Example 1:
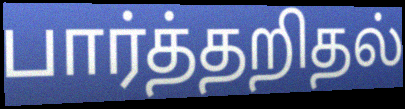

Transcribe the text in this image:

பார்த்தறிதல்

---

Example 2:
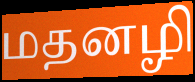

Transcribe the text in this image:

மதனழி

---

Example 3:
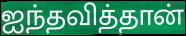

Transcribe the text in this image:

ஐந்தவித்தான்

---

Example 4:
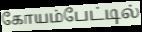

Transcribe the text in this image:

கோயம்பேட்டில்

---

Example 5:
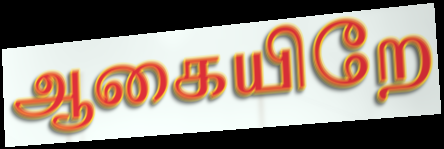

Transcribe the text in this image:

ஆகையிறே